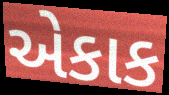
એકાક